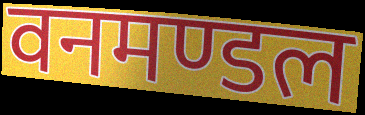
वनमण्डल